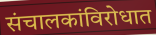
संचालकांविरोधात